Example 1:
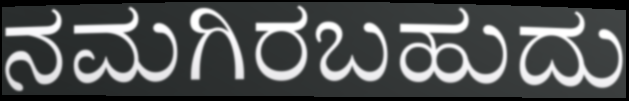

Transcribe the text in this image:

ನಮಗಿರಬಹುದು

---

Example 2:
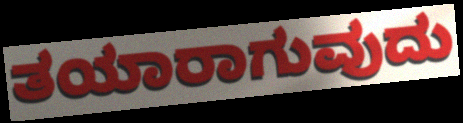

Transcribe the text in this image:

ತಯಾರಾಗುವುದು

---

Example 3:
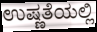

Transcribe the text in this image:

ಉಷ್ಣತೆಯಲ್ಲಿ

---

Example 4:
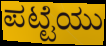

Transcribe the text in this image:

ಪಟ್ಟೆಯು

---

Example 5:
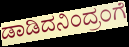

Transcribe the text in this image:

ಡಾಡಿದನಿಂದ್ರಂಗೆ